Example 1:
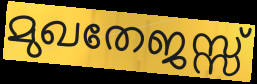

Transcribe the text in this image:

മുഖതേജസ്സ്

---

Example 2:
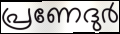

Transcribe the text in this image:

പ്രണേദുർ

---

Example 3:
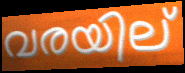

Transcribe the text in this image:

വരയില്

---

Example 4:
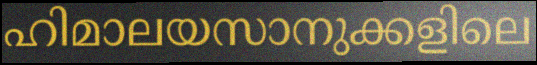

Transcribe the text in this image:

ഹിമാലയസാനുക്കളിലെ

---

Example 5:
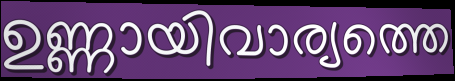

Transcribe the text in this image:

ഉണ്ണായിവാര്യത്തെ